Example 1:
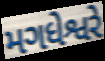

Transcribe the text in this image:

મગધેશ્વરે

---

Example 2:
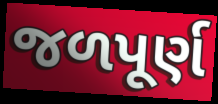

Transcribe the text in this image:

જળપૂર્ણ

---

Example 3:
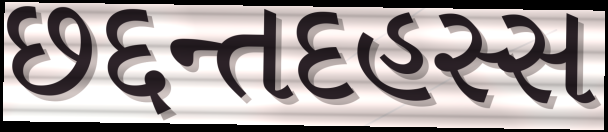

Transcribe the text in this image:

છદ્દન્તદહસ્સ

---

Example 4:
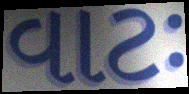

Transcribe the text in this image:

વાટઃ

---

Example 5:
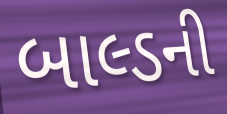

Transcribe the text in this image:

બાલ્ડની